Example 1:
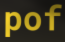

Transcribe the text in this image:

pof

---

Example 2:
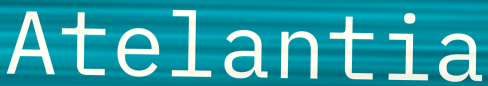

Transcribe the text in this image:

Atelantia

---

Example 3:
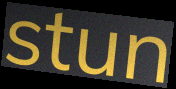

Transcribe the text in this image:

stun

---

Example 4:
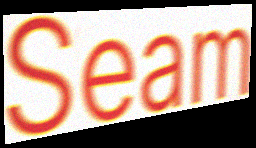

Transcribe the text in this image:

Seam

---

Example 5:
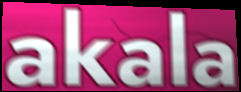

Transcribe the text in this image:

akala